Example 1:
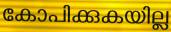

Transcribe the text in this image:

കോപിക്കുകയില്ല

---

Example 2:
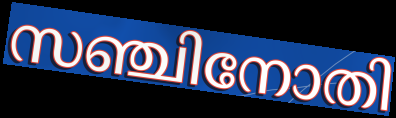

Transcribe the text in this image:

സഞ്ചിനോതി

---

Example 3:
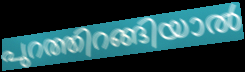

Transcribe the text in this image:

പുറത്തിറങ്ങിയാൽ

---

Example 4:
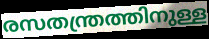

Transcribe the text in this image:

രസതന്ത്രത്തിനുള്ള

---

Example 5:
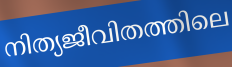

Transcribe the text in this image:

നിത്യജീവിതത്തിലെ